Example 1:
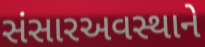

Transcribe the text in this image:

સંસારઅવસ્થાને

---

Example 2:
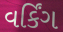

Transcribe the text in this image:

વર્કિંગ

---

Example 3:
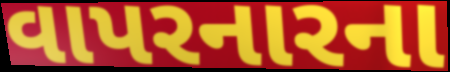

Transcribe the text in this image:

વાપરનારના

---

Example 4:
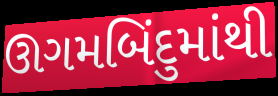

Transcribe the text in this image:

ઊગમબિંદુમાંથી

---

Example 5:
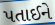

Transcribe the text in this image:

પતાઈને